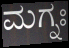
ಮಗ್ನಃ